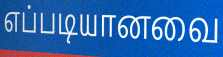
எப்படியானவை